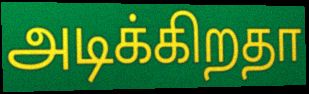
அடிக்கிறதா